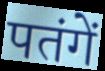
पतंगें